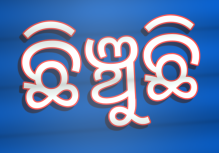
ଛିଞ୍ଚୁଛି